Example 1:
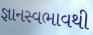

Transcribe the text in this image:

જ્ઞાનસ્વભાવથી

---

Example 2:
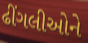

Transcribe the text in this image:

ઢીંગલીઓને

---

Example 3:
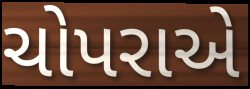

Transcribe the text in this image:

ચોપરાએ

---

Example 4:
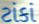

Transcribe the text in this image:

ટાંકાં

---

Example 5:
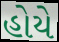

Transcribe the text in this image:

હોયે